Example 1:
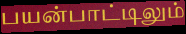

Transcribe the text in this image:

பயன்பாட்டிலும்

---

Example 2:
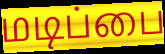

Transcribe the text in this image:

மடிப்பை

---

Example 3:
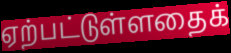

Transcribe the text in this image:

ஏற்பட்டுள்ளதைக்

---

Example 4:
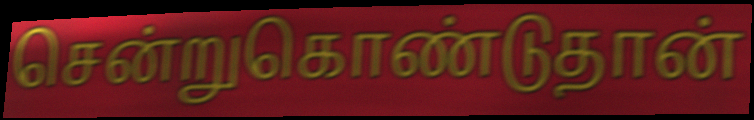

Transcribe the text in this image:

சென்றுகொண்டுதான்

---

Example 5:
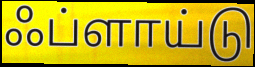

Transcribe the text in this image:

ஃப்ளாய்டு